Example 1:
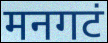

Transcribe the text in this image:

मनगटं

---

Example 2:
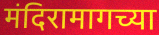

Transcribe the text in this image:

मंदिरामागच्या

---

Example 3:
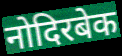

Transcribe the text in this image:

नोदिरबेक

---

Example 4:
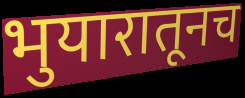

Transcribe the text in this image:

भुयारातूनच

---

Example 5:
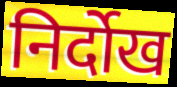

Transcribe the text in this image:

निर्दोख